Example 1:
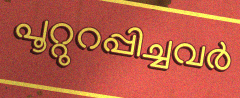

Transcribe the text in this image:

പൂറ്റുറപ്പിച്ചവർ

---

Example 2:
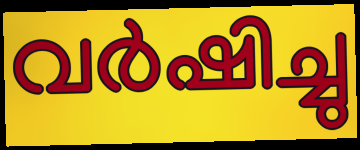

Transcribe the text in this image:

വർഷിച്ചു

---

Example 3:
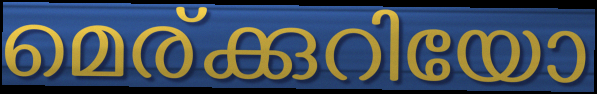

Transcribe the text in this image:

മെര്ക്കുറിയോ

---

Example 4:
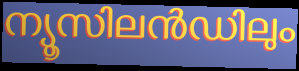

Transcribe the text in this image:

ന്യൂസിലൻഡിലും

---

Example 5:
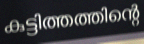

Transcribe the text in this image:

കുട്ടിത്തത്തിന്റെ